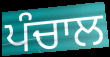
ਪੰਚਾਲ